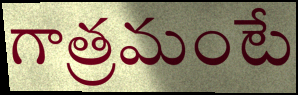
గాత్రమంటే